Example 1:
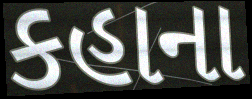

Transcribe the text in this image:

કહાના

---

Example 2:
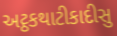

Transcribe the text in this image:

અટ્ઠકથાટીકાદીસુ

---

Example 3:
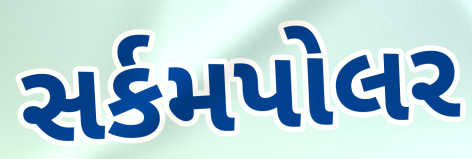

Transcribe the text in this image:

સર્કમપોલર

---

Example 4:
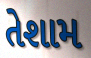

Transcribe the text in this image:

તેશામ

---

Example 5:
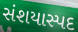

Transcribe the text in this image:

સંશયાસ્પદ